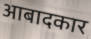
आबादकार